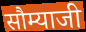
सौम्याजी